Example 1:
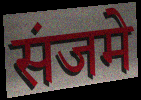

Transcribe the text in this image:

संजमे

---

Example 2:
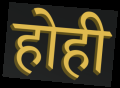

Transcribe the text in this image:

होही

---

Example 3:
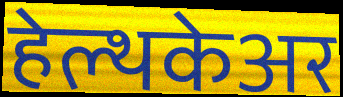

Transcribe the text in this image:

हेल्थकेअर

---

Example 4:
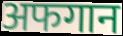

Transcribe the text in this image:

अफगान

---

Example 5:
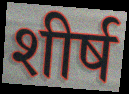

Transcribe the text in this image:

शीर्ष